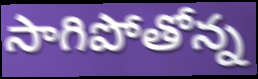
సాగిపోతోన్న